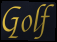
Golf